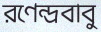
রণেন্দ্রবাবু